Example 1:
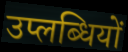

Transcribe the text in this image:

उप्लब्धियों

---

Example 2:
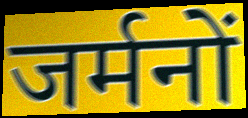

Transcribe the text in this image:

जर्मनों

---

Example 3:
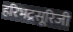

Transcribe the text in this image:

हरिभद्रसूरिजी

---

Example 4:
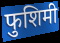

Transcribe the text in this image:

फुशिमी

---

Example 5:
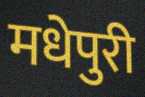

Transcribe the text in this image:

मधेपुरी